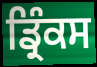
ਡ੍ਰਿੰਕਸ